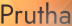
Prutha